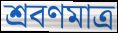
শ্রবণমাত্র